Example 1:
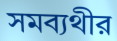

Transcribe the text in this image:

সমব্যথীর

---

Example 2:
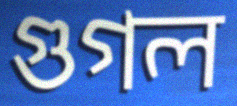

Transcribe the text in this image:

গুগল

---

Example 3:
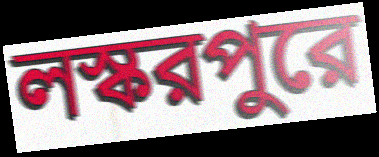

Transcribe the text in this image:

লস্করপুরে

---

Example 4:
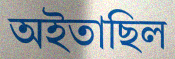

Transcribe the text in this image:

অইতাছিল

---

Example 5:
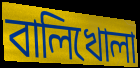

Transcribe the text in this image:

বালিখোলা